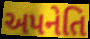
અપનેતિ